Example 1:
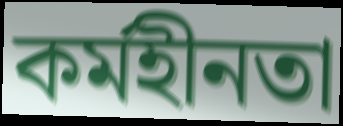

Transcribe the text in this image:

কর্মহীনতা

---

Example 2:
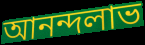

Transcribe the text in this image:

আনন্দলাভ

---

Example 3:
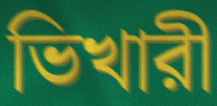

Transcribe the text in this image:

ভিখারী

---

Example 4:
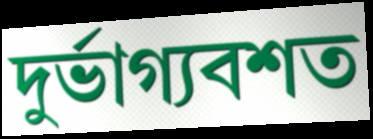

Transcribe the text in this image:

দুর্ভাগ্যবশত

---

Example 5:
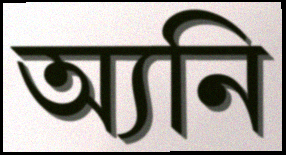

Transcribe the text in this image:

অ্যনি